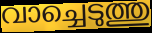
വാച്ചെടുത്തു